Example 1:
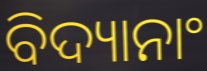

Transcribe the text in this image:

ବିଦ୍ୟାନାଂ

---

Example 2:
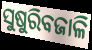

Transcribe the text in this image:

ସୁଷୁରିବଜାଳି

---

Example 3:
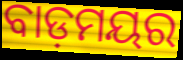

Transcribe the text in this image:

ବାଡ଼ମୟର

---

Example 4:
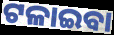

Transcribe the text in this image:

ଟଳାଇବା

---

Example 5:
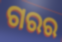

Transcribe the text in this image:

ଗରର